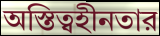
অস্তিত্বহীনতার